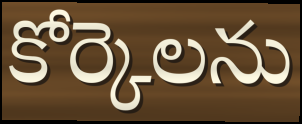
కోర్కెలను